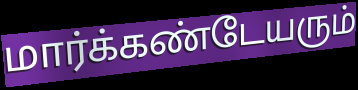
மார்க்கண்டேயரும்